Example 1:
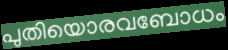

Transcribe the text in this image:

പുതിയൊരവബോധം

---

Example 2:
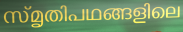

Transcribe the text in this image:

സ്മൃതിപഥങ്ങളിലെ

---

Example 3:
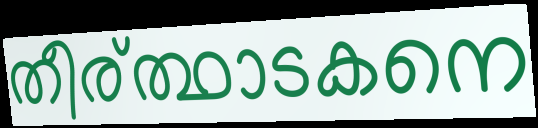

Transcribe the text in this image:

തീര്ത്ഥാടകനെ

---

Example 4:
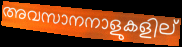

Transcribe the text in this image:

അവസാനനാളുകളില്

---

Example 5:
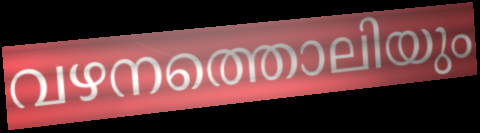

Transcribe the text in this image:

വഴനത്തൊലിയും